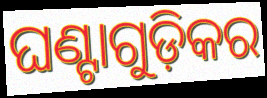
ଘଣ୍ଟାଗୁଡ଼ିକର